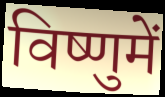
विष्णुमें